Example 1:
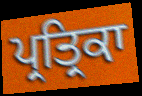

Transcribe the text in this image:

ਪ੍ਰਤ੍ਰਿਕਾ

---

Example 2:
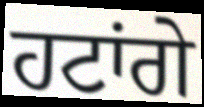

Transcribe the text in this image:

ਹਟਾਂਗੇ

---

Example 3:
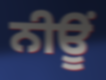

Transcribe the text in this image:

ਨੀਊਂ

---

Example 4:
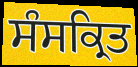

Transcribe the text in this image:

ਸੰਸਕ੍ਰਿਤ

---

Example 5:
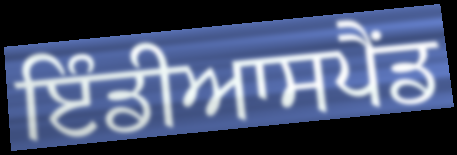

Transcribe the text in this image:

ਇੰਡੀਆਸਪੈਂਡ